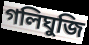
গলিঘুজি